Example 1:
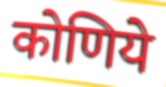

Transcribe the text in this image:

कोणिये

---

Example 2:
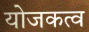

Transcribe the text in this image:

योजकत्व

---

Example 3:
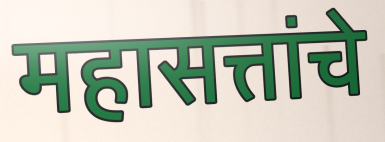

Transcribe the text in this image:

महासत्तांचे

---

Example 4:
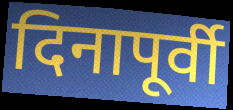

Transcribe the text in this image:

दिनापूर्वी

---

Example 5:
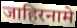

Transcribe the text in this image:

जाहिरनामे